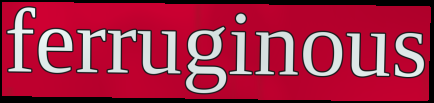
ferruginous